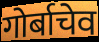
गोर्बाचेव